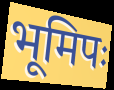
भूमिपः